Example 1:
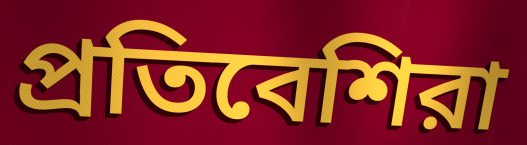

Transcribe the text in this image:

প্রতিবেশিরা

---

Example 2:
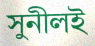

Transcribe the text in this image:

সুনীলই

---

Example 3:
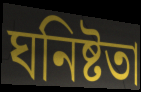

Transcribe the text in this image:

ঘনিষ্টতা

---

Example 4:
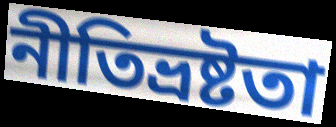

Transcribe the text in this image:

নীতিভ্রষ্টতা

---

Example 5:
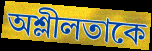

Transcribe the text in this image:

অশ্লীলতাকে